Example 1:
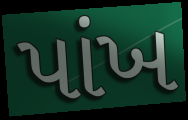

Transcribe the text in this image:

પાંખ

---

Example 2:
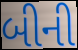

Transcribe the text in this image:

બીની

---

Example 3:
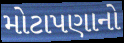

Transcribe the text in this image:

મોટાપણાનો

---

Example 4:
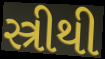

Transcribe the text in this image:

સ્ત્રીથી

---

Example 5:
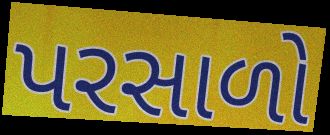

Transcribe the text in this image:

પરસાળો